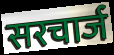
सरचार्ज